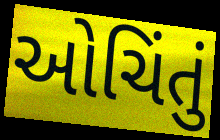
ઓચિંતું